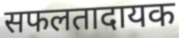
सफलतादायक